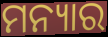
ମନ୍ୟାର